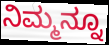
ನಿಮ್ಮನ್ನೂ